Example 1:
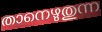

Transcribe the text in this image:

താനെഴുതുന്ന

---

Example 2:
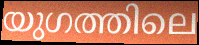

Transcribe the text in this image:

യുഗത്തിലെ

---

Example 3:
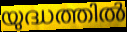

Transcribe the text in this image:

യുദ്ധത്തിൽ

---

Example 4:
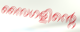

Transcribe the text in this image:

സൈഗളിന്റെ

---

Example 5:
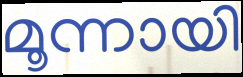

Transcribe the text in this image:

മൂന്നായി